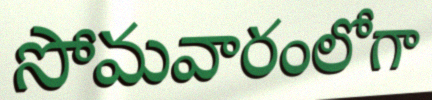
సోమవారంలోగా